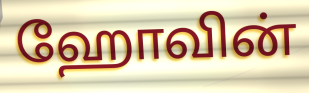
ஹோவின்